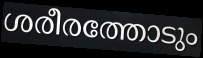
ശരീരത്തോടും